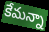
కేమన్నా